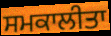
ਸਮਕਾਲੀਤਾ